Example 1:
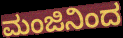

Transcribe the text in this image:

ಮಂಜಿನಿಂದ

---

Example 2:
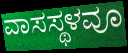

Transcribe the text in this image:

ವಾಸಸ್ಥಳವೂ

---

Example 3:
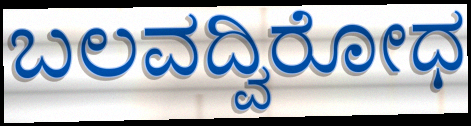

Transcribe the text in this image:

ಬಲವದ್ವಿರೋಧ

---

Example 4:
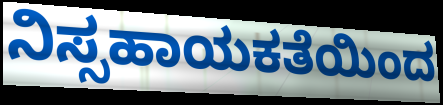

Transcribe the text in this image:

ನಿಸ್ಸಹಾಯಕತೆಯಿಂದ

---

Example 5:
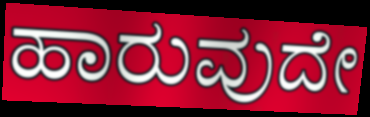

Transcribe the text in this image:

ಹಾರುವುದೇ